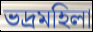
ভদ্ৰমহিলা